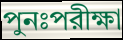
পুনঃপরীক্ষা